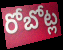
రోబోట్ల